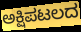
ಅಕ್ಷಿಪಟಲದ